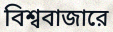
বিশ্ববাজারে